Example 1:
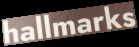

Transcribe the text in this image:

hallmarks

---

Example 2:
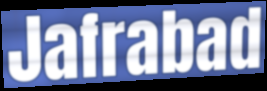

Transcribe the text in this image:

Jafrabad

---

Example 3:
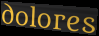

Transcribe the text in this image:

dolores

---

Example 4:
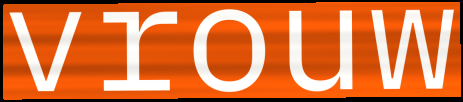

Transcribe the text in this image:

vrouw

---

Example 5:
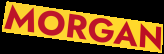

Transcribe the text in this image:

MORGAN